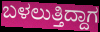
ಬಳಲುತ್ತಿದ್ದಾಗ